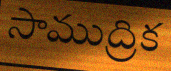
సాముద్రిక